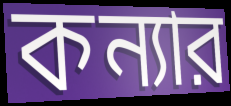
কন্যার